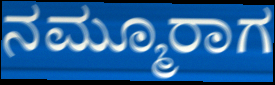
ನಮ್ಮೂರಾಗ